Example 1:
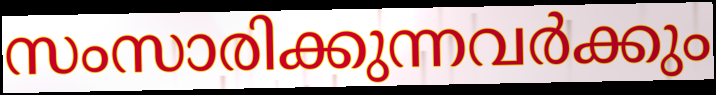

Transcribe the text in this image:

സംസാരിക്കുന്നവർക്കും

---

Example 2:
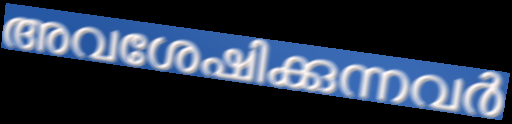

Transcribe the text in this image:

അവശേഷിക്കുന്നവർ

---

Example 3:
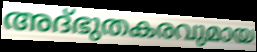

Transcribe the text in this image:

അദ്ഭുതകരവുമായ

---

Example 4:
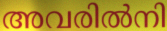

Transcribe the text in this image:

അവരിൽനി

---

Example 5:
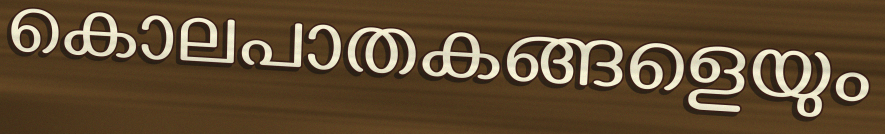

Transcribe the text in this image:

കൊലപാതകങ്ങളെയും